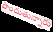
పొందుతున్నారు